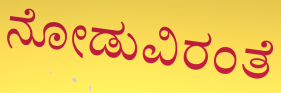
ನೋಡುವಿರಂತೆ